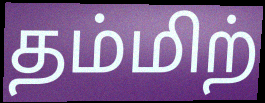
தம்மிற்